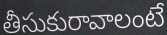
తీసుకురావాలంటే